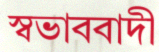
স্বভাববাদী